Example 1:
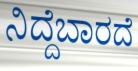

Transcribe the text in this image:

ನಿದ್ದೆಬಾರದೆ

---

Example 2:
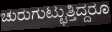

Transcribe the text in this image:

ಚುರುಗುಟ್ಟುತ್ತಿದ್ದರೂ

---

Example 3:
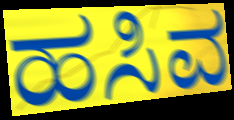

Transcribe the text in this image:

ಹಸಿವ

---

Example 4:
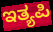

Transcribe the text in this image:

ಇತ್ಯಪಿ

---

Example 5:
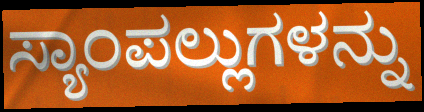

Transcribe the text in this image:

ಸ್ಯಾಂಪಲ್ಲುಗಳನ್ನು